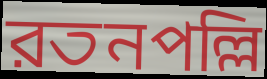
রতনপল্লি